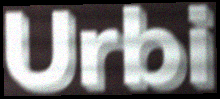
Urbi